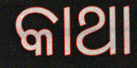
କାଥା